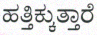
ಹತ್ತಿಕ್ಕುತ್ತಾರೆ